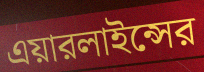
এয়ারলাইন্সের